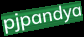
pjpandya